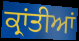
ਕ੍ਰਾਂਤੀਆਂ